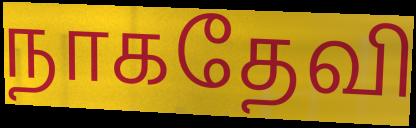
நாகதேவி